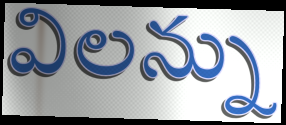
విలన్ను